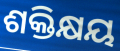
ଶକ୍ତିକ୍ଷୟ